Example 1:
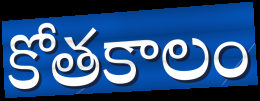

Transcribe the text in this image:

కోతకాలం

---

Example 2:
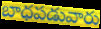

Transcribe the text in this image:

బాధపడువారు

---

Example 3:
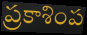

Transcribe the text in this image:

ప్రకాశింప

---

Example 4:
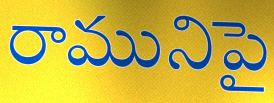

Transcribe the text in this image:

రామునిపై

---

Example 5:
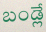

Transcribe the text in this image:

బండ్లే